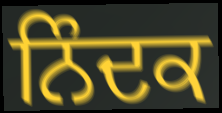
ਨਿੰਦਕ